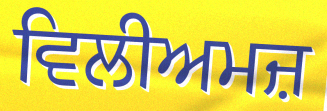
ਵਿਲੀਅਮਜ਼